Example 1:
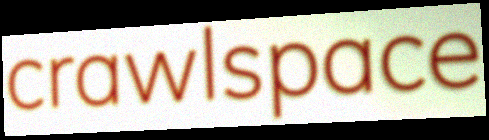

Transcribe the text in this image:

crawlspace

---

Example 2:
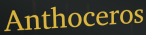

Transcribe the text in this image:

Anthoceros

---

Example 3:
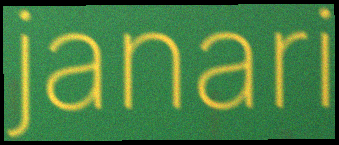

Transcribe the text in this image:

janari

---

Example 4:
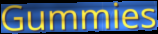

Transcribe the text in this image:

Gummies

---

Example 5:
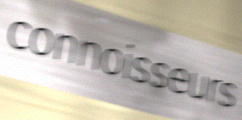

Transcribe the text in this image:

connoisseurs